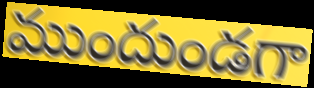
ముందుండగా